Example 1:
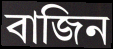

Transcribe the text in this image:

বাজিন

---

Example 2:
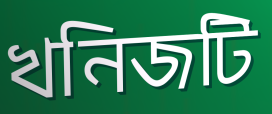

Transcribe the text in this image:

খনিজটি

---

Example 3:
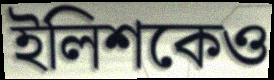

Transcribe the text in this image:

ইলিশকেও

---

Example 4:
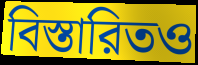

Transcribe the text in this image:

বিস্তারিতও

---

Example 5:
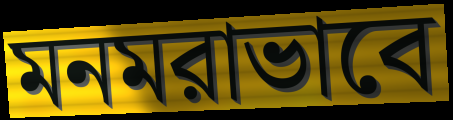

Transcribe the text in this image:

মনমরাভাবে